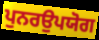
ਪੁਨਰਉਪਯੋਗ